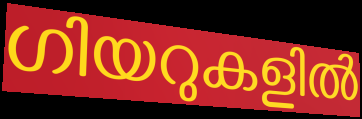
ഗിയറുകളിൽ